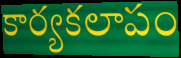
కార్యకలాపం